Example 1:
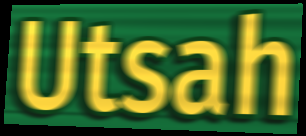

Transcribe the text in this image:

Utsah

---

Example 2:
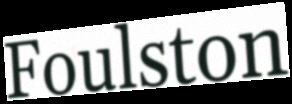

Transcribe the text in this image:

Foulston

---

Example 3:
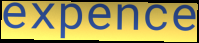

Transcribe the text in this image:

expence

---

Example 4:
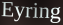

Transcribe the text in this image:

Eyring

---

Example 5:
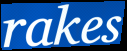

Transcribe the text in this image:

rakes